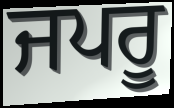
ਜਪਰੂ